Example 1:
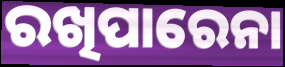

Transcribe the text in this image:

ରଖିପାରେନା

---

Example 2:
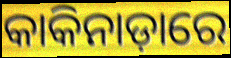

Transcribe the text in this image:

କାକିନାଡ଼ାରେ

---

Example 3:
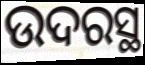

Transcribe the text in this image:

ଉଦରସ୍ଥ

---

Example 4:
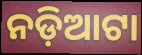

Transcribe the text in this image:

ନଡ଼ିଆଟା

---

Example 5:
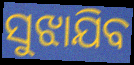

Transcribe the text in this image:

ସୁଝାଯିବ